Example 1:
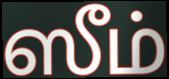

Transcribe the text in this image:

ஸீம்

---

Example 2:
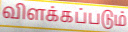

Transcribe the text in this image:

விளக்கப்படும்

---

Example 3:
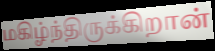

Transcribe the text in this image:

மகிழ்ந்திருக்கிறான்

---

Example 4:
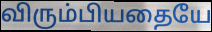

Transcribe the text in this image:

விரும்பியதையே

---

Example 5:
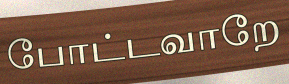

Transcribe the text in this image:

போட்டவாறே